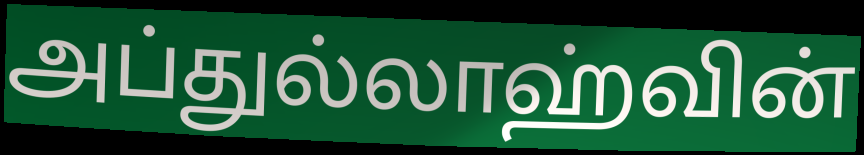
அப்துல்லாஹ்வின்